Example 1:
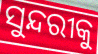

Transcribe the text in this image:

ସୁନ୍ଦରୀକୁ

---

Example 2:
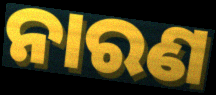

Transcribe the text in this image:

ନାରଣ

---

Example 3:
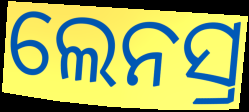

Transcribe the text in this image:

ଲେନସ୍ର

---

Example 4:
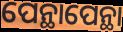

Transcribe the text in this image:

ପେନ୍ଥାପେନ୍ଥା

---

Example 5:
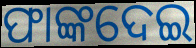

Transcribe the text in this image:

ଫାଙ୍କଦେଇ